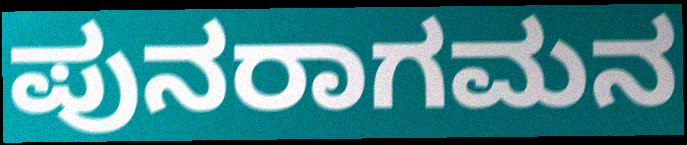
ಪುನರಾಗಮನ